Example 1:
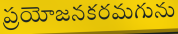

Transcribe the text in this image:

ప్రయోజనకరమగును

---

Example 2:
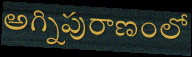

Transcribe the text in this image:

అగ్నిపురాణంలో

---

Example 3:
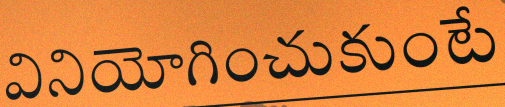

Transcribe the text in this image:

వినియోగించుకుంటే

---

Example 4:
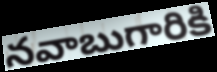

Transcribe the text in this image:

నవాబుగారికి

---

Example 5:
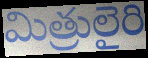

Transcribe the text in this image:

మిత్రులైరి